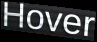
Hover